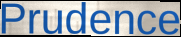
Prudence